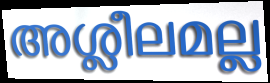
അശ്ലീലമല്ല